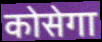
कोसेगा